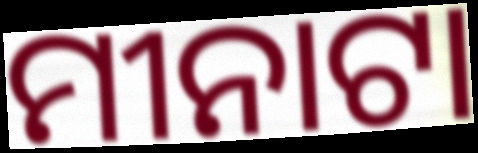
ମୀନାଟା